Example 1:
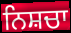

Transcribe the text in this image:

ਨਿਸ਼ਚਾ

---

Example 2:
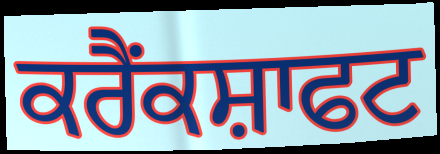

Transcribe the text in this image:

ਕਰੈਂਕਸ਼ਾਫਟ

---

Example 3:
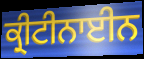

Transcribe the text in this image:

ਕ੍ਰੀਟੀਨਾਈਨ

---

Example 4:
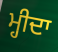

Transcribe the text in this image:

ਮ੍ਹੀਦਾ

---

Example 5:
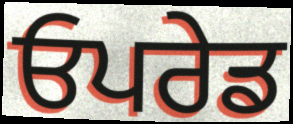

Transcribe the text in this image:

ਓਪਰੇਡ